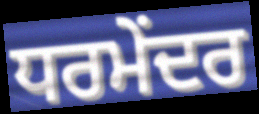
ਧਰਮੇਂਦਰ